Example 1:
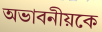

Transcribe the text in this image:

অভাবনীয়কে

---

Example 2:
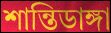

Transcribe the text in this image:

শান্তিডাঙ্গা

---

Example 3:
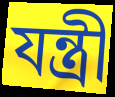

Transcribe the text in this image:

যন্ত্রী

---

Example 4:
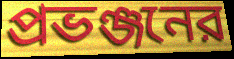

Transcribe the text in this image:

প্রভঞ্জনের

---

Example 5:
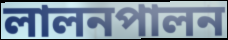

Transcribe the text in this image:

লালনপালন